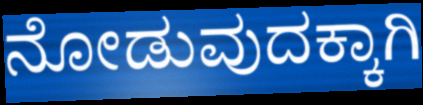
ನೋಡುವುದಕ್ಕಾಗಿ